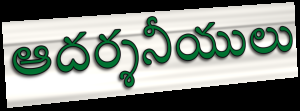
ఆదర్శనీయులు